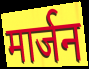
मार्जन